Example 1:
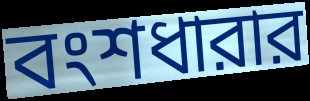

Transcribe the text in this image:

বংশধারার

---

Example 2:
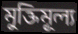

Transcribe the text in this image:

মুক্তিমূল্য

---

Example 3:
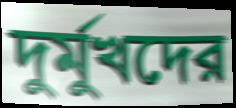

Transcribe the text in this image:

দুর্মুখদের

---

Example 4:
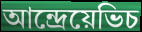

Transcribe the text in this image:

আন্দ্রেয়েভিচ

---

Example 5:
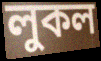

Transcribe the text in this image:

লুকল